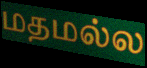
மதமல்ல